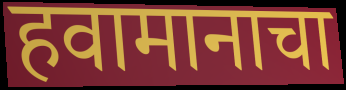
हवामानाचा